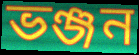
ভঞ্জন